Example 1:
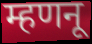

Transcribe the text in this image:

म्हणनू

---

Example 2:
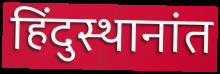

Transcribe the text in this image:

हिंदुस्थानांत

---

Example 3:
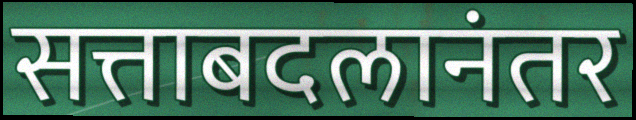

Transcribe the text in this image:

सत्ताबदलानंतर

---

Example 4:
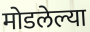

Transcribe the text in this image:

मोडलेल्या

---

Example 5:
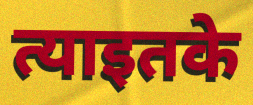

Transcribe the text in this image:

त्याइतके